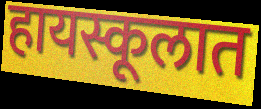
हायस्कूलात